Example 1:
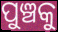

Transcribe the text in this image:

ପୁଞ୍ଚକୁ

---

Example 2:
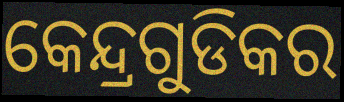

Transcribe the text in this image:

କେନ୍ଦ୍ରଗୁଡିକର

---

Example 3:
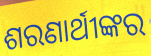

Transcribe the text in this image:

ଶରଣାର୍ଥୀଙ୍କର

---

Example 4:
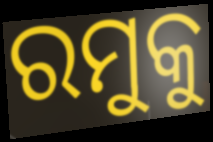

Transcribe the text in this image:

ରମୁକୁ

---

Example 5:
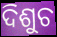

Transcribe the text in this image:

ଦିଶୁଚ